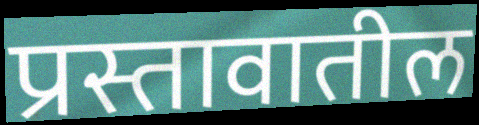
प्रस्तावातील